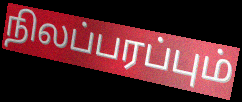
நிலப்பரப்பும்